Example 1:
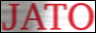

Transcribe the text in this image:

JATO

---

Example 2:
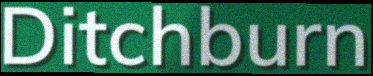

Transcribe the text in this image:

Ditchburn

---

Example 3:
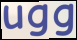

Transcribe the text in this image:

ugg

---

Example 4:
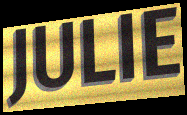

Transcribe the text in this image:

JULIE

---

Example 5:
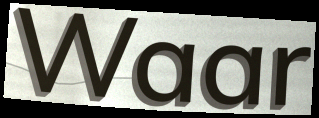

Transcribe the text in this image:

Waar